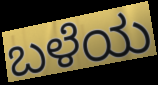
ಬಳೆಯ